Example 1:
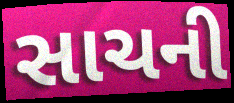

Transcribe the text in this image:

સાચની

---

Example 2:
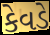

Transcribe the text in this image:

કેવડે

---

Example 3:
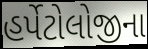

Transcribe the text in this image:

હર્પેટોલોજીના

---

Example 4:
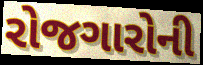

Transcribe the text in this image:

રોજગારોની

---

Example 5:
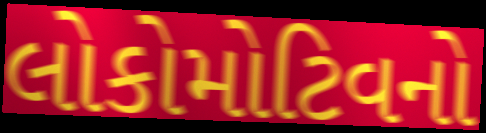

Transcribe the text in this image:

લોકોમોટિવનો